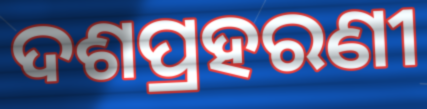
ଦଶପ୍ରହରଣୀ